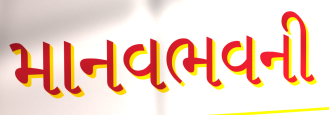
માનવભવની